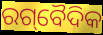
ରଗ୍‌ବୈଦିକ